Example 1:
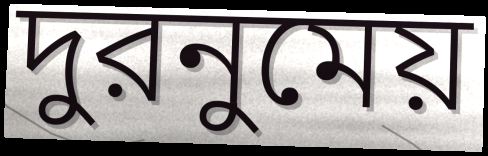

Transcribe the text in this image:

দুরনুমেয়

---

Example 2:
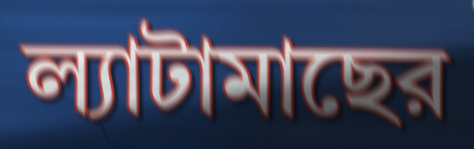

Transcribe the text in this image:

ল্যাটামাছের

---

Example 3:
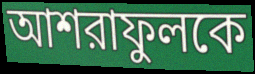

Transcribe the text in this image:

আশরাফুলকে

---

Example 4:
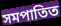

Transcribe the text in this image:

সমপাতিত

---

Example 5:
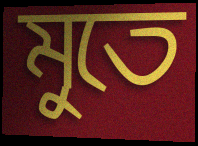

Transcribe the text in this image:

মুতে